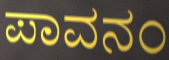
ಪಾವನಂ